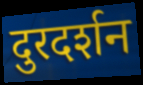
दुरदर्शन